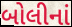
બોલીનાં